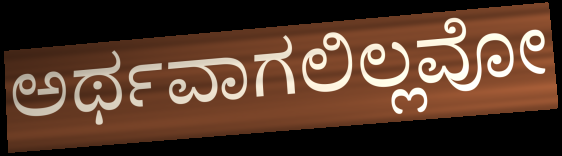
ಅರ್ಥವಾಗಲಿಲ್ಲವೋ